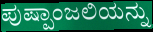
ಪುಷ್ಪಾಂಜಲಿಯನ್ನು